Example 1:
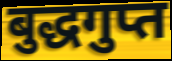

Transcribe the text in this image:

बुद्धगुप्त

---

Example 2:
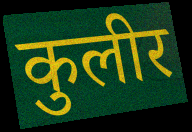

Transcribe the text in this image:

कुलीर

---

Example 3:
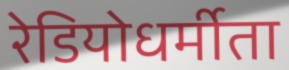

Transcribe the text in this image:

रेडियोधर्मीता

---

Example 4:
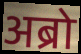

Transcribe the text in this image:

अब्रो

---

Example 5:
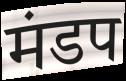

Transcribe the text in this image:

मंडप